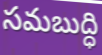
సమబుద్ధి